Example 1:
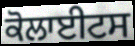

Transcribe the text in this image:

ਕੋਲਾਈਟਸ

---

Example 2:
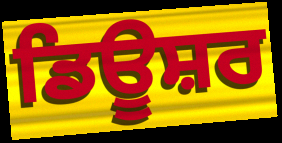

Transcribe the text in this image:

ਡਿਊਸ਼ਰ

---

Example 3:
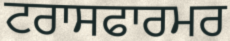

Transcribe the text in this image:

ਟਰਾਸਫਾਰਮਰ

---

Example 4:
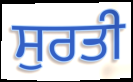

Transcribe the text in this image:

ਸੁਰਤੀ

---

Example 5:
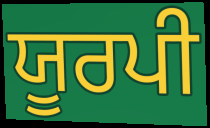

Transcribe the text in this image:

ਯੂਰਪੀ